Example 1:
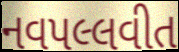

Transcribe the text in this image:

નવપલ્લવીત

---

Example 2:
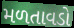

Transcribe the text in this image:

મળતાવડો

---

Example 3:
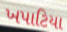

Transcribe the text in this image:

ખપાટિયા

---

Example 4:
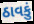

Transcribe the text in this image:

ઠાવકું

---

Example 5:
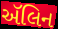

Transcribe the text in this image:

ઍલિન